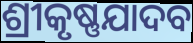
ଶ୍ରୀକୃଷ୍ଣଯାଦବ